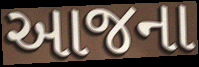
આજના